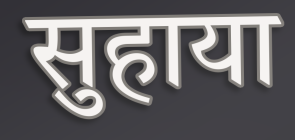
सुहाया